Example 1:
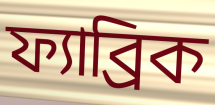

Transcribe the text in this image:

ফ্যাব্রিক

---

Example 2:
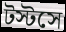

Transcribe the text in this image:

টস্টসে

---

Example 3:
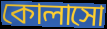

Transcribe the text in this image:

কোলাসো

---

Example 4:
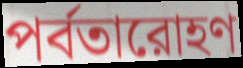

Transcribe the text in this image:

পর্বতারোহণ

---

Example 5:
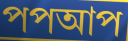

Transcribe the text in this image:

পপআপ